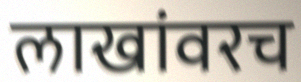
लाखांवरच